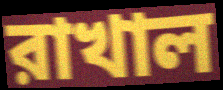
রাখাল